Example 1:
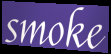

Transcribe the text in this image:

smoke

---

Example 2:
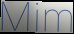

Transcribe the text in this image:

Mim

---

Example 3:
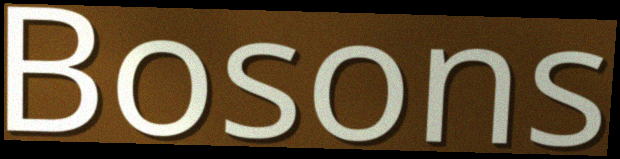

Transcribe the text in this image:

Bosons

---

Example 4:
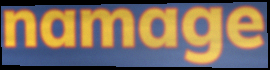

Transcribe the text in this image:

namage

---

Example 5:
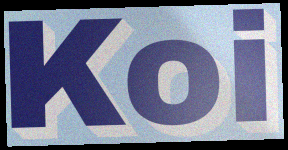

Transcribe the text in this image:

Koi